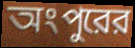
অংপুরের